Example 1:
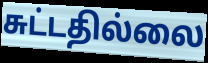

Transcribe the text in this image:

சுட்டதில்லை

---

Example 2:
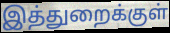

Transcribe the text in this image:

இத்துறைக்குள்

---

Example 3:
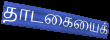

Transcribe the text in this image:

தாடகையைக்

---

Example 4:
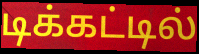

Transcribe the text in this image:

டிக்கட்டில்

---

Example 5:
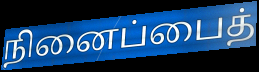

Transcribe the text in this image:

நினைப்பைத்